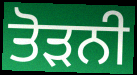
ਤੋੜਨੀ